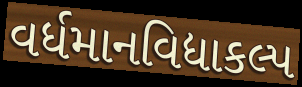
વર્ધમાનવિદ્યાકલ્પ